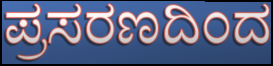
ಪ್ರಸರಣದಿಂದ